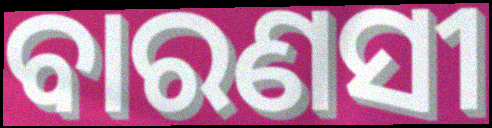
ବାରଣସୀ